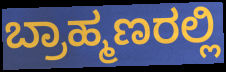
ಬ್ರಾಹ್ಮಣರಲ್ಲಿ